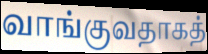
வாங்குவதாகத்